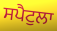
ਸਪੈਟੁਲਾ